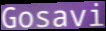
Gosavi